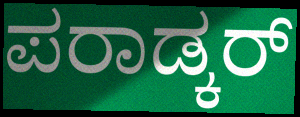
ಪರಾಡ್ಕರ್